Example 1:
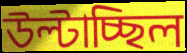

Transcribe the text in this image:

উল্টাচ্ছিল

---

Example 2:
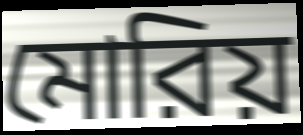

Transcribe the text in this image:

মোরিয়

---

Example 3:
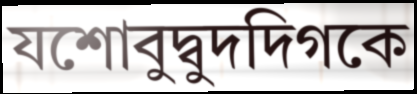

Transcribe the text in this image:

যশোবুদ্বুদদিগকে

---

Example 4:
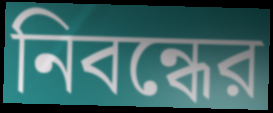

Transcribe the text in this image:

নিবন্ধের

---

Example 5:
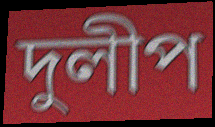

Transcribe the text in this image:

দুলীপ